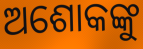
ଅଶୋକଙ୍କୁ